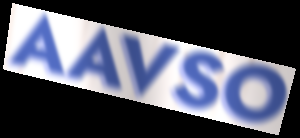
AAVSO